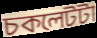
চকলেটটা